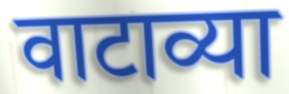
वाटाव्या